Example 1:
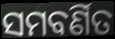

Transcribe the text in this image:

ସମବର୍ଣିତ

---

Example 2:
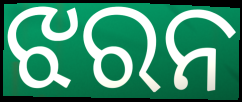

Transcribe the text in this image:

ଝରନ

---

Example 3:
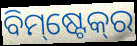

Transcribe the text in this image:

ବିମ୍‌ଷ୍ଟେକ୍‌ର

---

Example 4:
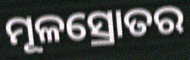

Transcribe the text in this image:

ମୂଳସ୍ରୋତର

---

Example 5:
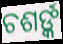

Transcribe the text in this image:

ଚଶର୍ଙ୍କ